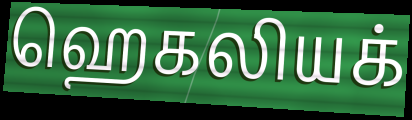
ஹெகலியக்